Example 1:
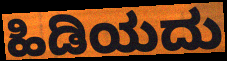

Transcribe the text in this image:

ಹಿಡಿಯದು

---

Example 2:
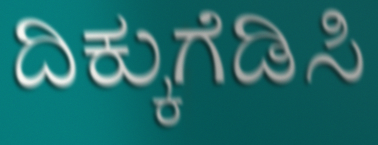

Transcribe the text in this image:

ದಿಕ್ಕುಗೆಡಿಸಿ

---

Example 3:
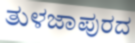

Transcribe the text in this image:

ತುಳಜಾಪುರದ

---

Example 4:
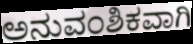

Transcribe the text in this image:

ಅನುವಂಶಿಕವಾಗಿ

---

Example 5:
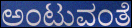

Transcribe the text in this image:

ಅಂಟುವಂತೆ